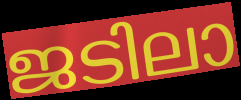
ജടിലാ